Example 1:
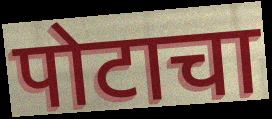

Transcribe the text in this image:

पोटाचा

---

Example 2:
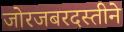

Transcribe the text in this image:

जोरजबरदस्तीने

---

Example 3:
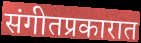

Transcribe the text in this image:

संगीतप्रकारात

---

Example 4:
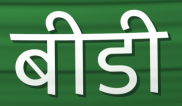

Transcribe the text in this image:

बीडी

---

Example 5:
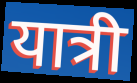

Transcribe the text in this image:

यात्री